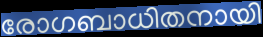
രോഗബാധിതനായി